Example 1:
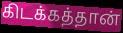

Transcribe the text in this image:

கிடக்கத்தான்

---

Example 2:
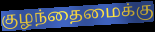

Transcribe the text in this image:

குழந்தைமைக்கு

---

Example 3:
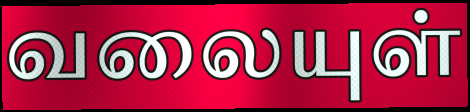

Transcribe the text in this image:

வலையுள்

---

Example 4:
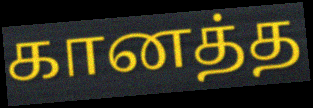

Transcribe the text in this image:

கானத்த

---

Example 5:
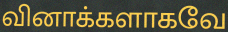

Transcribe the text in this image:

வினாக்களாகவே